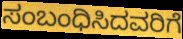
ಸಂಬಂಧಿಸಿದವರಿಗೆ